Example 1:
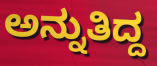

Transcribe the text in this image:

ಅನ್ನುತಿದ್ದ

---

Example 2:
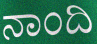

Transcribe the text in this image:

ನಾಂದಿ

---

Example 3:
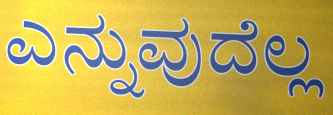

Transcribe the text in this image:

ಎನ್ನುವುದೆಲ್ಲ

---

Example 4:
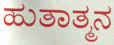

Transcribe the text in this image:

ಹುತಾತ್ಮನ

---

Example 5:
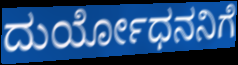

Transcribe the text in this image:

ದುರ್ಯೋಧನನಿಗೆ